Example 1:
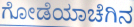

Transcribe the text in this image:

ಗೋಡೆಯಾಚೆಗಿನ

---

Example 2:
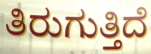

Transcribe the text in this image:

ತಿರುಗುತ್ತಿದೆ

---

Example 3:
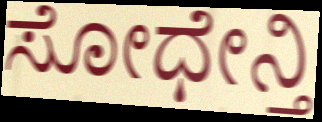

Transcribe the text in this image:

ಸೋಧೇನ್ತಿ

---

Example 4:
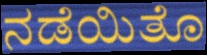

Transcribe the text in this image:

ನಡೆಯಿತೊ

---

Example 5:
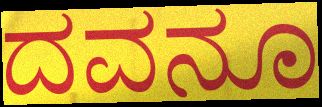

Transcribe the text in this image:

ದವನೂ